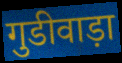
गुडीवाड़ा